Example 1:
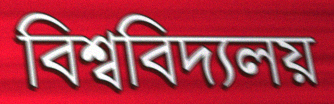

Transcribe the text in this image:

বিশ্ববিদ্যলয়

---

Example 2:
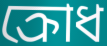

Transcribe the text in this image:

ক্ৰোধ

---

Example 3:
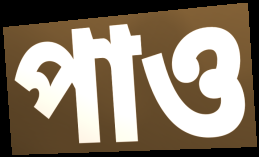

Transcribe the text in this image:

পাও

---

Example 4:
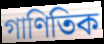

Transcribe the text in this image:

গাণিতিক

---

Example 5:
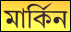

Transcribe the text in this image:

মাৰ্কিন